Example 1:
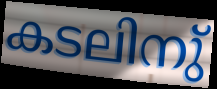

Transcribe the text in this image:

കടലിനു്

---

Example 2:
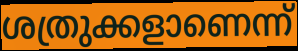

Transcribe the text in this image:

ശത്രുക്കളാണെന്ന്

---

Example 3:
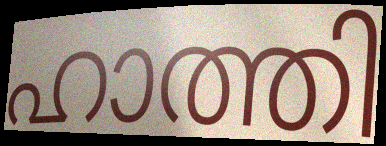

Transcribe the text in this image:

ഹാത്തി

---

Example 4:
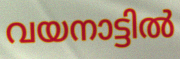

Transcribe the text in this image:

വയനാട്ടിൽ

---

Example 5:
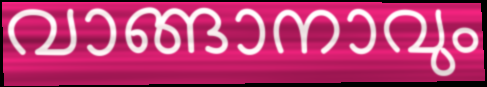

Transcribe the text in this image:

വാങ്ങാനാവും